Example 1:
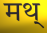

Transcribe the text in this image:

मथ्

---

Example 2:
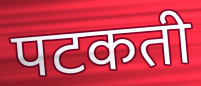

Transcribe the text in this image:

पटकती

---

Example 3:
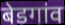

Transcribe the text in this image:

बेडगांव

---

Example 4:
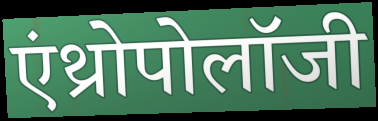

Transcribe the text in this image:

एंथ्रोपोलॉजी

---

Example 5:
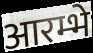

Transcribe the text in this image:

आरम्भे